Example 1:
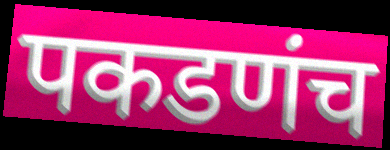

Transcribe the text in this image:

पकडणंच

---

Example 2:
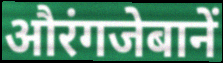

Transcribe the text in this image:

औरंगजेबानें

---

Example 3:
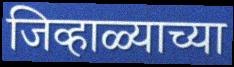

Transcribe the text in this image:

जिव्हाळ्याच्या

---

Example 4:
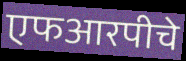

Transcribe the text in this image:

एफआरपीचे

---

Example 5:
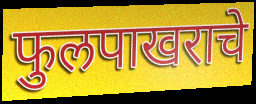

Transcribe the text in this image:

फुलपाखराचे